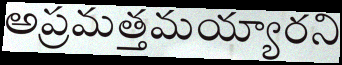
అప్రమత్తమయ్యారని